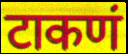
टाकणं